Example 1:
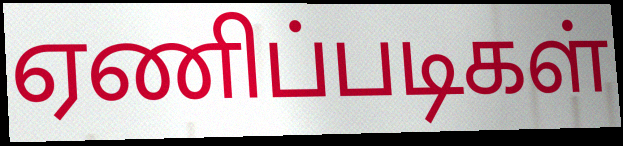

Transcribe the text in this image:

ஏணிப்படிகள்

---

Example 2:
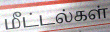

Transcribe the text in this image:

மீட்டல்கள்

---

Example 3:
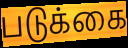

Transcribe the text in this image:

படுக்கை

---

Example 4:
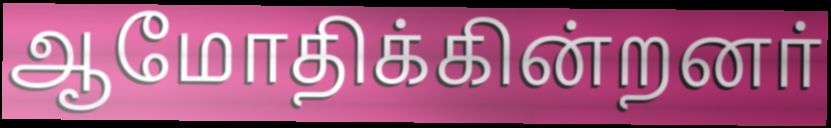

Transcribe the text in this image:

ஆமோதிக்கின்றனர்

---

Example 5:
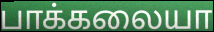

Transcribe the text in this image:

பாக்கலையா